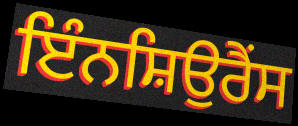
ਇੰਨਸ਼ਿਉਰੈਂਸ